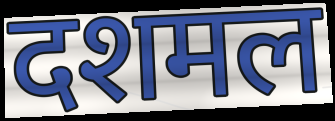
दशमल